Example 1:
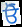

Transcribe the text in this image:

ਓੋ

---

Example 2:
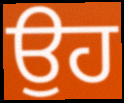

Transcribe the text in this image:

ਉਹ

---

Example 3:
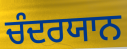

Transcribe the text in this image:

ਚੰਦਰਯਾਨ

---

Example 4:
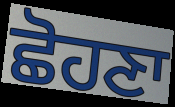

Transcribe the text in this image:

ਛੋਹਣਾ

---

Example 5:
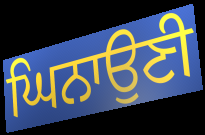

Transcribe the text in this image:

ਘਿਨਾਉਣੀ